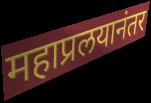
महाप्रलयानंतर